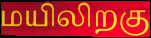
மயிலிறகு